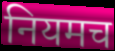
नियमच